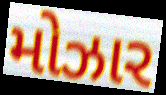
મોઝાર